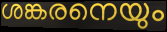
ശങ്കരനെയും